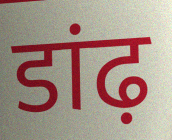
डांढ़